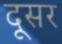
दूसर